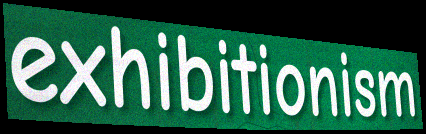
exhibitionism